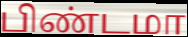
பிண்டமா